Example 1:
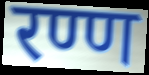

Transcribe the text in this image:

रण्ण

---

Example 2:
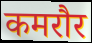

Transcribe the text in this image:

कमरौर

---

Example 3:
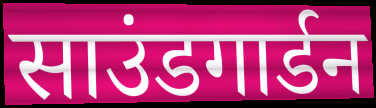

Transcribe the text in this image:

साउंडगार्डन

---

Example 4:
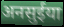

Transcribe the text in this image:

अनसुईया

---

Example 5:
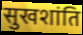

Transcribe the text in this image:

सुखशांति